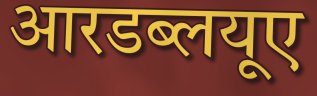
आरडब्लयूए